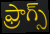
ఫ్రాగ్స్